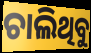
ଚାଲିଥିବୁ